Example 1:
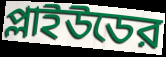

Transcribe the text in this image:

প্লাইউডের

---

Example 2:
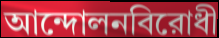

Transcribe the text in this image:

আন্দোলনবিরোধী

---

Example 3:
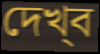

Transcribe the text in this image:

দেখ্‌ব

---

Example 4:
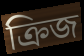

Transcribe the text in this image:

ক্রিজ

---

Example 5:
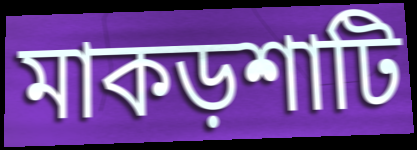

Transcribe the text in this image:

মাকড়শাটি